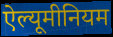
ऐल्यूमीनियम